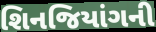
શિનજિયાંગની